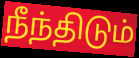
நீந்திடும்